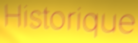
Historique